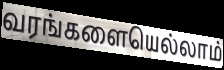
வரங்களையெல்லாம்